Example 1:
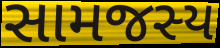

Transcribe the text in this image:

સામજસ્ય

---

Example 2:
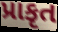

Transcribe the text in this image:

પ્રાકૃત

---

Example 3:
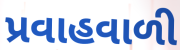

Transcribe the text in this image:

પ્રવાહવાળી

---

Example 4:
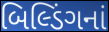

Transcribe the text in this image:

બિલ્ડિંગનાં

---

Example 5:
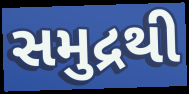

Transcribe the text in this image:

સમુદ્રથી